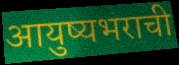
आयुष्यभराची